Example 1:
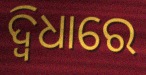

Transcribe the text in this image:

ଦ୍ୱିଧାରେ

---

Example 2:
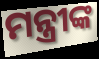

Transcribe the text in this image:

ମନ୍ତ୍ରୀଙ୍କ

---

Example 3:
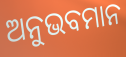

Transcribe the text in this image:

ଅନୁଭବମାନ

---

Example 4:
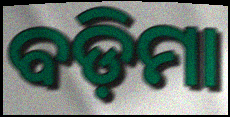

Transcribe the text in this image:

ବଡ଼ିମା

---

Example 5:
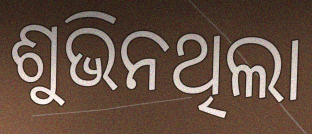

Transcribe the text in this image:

ଶୁଭିନଥିଲା